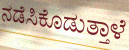
ನಡೆಸಿಕೊಡುತ್ತಾಳೆ